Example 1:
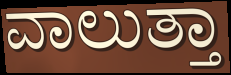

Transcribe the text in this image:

ವಾಲುತ್ತಾ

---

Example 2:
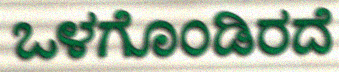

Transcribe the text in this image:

ಒಳಗೊಂಡಿರದೆ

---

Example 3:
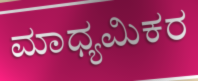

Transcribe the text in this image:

ಮಾಧ್ಯಮಿಕರ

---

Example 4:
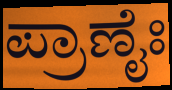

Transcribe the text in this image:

ಪ್ರಾಣೈಃ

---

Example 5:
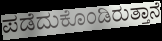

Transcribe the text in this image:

ಪಡೆದುಕೊಂಡಿರುತ್ತಾನೆ